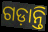
ଗଡ଼ାନ୍ତି